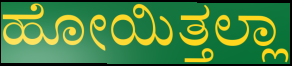
ಹೋಯಿತ್ತಲ್ಲಾ